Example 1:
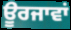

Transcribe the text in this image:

ਊਰਜਾਵਾਂ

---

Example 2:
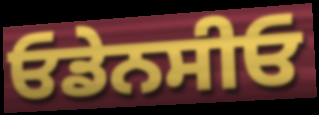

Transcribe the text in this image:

ਓਡੇਨਸੀਓ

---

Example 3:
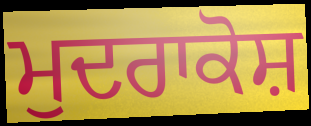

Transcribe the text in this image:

ਮੁਦਰਾਕੋਸ਼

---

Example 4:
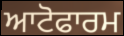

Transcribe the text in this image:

ਆਟੋਫਾਰਮ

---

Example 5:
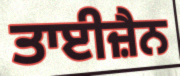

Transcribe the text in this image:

ਤਾਈਜ਼ੈਨ